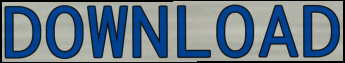
DOWNLOAD